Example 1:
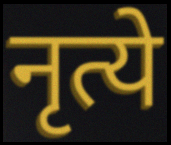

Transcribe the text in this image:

नृत्ये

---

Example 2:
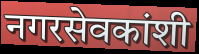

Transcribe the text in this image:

नगरसेवकांशी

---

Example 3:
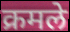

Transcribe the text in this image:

क्रमले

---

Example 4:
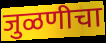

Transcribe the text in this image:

जुळणीचा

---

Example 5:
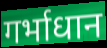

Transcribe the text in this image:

गर्भाधान